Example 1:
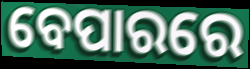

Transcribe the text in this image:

ବେପାରରେ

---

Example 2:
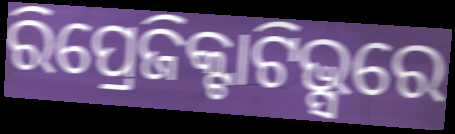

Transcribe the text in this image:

ରିପ୍ରେଜିକ୍ଟାଟିଭ୍ସରେ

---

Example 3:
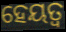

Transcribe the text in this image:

ହେୟତ୍ୱ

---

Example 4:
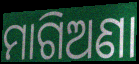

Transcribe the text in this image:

ମାଗିଅଣା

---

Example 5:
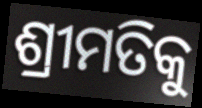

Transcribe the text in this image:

ଶ୍ରୀମତିକୁ